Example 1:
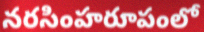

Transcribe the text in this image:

నరసింహరూపంలో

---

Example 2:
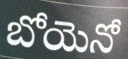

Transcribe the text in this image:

బోయెనో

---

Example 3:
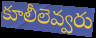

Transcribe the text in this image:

కూలీలెవ్వరు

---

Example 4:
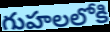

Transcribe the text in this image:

గుహలలోకి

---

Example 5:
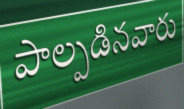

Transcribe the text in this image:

పాల్పడినవారు